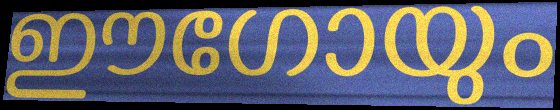
ഈഗോയും